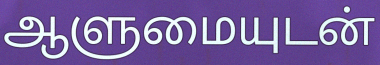
ஆளுமையுடன்